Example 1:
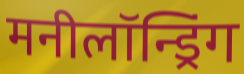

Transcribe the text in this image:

मनीलॉन्ड्रिंग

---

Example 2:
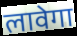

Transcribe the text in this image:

लावेगा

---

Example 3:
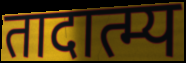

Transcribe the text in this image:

तादात्म्य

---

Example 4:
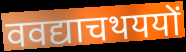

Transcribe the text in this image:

ववद्याचथययों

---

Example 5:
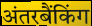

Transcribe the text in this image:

अंतरबैंकिंग